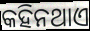
କହିନଥାଏ